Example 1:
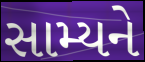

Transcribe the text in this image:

સામ્યને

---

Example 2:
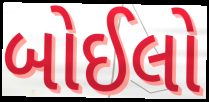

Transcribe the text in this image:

બોઈલો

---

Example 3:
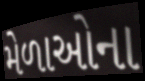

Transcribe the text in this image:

મેળાઓના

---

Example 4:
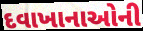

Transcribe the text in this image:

દવાખાનાઓની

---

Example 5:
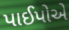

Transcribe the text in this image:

પાઈપોએ